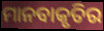
ମାନବାକୃତିର